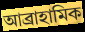
আব্ৰাহামিক